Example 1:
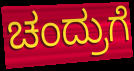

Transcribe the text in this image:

ಚಂದ್ರುಗೆ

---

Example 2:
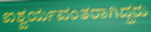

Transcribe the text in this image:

ಐಶ್ವರ್ಯವಂತರಾಗಿದ್ದರು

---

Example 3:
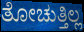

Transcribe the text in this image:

ತೋಚುತ್ತಿಲ್ಲ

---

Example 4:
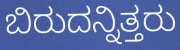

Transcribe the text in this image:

ಬಿರುದನ್ನಿತ್ತರು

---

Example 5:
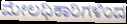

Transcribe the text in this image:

ಮೇಲಧಿಕಾರಿಗಳಿಂದ